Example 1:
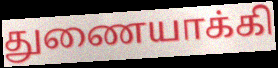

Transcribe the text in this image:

துணையாக்கி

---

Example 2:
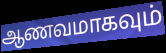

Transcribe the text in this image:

ஆணவமாகவும்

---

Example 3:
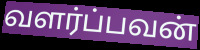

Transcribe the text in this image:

வளர்ப்பவன்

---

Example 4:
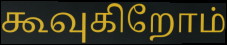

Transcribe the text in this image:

கூவுகிறோம்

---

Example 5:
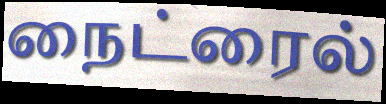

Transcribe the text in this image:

நைட்ரைல்